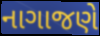
નાગાજણે